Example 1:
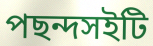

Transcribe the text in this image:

পছন্দসইটি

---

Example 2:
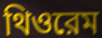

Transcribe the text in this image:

থিওরেম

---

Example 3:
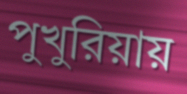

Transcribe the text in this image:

পুখুরিয়ায়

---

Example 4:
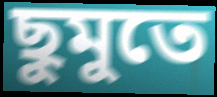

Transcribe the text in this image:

ছুমুতে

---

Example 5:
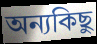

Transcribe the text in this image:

অন্যকিছু